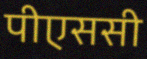
पीएससी